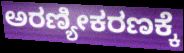
ಅರಣ್ಯೀಕರಣಕ್ಕೆ